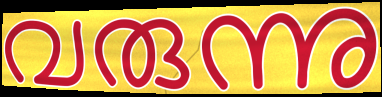
വരുന്നു